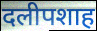
दलीपशाह